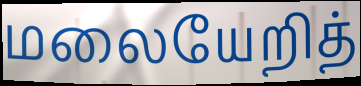
மலையேறித்